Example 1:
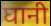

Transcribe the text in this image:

घानी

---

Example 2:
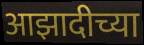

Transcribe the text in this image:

आझादीच्या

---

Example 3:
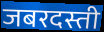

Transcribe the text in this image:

जबरदस्ती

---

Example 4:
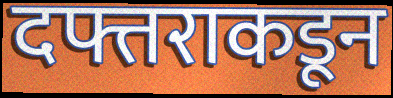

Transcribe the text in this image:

दफ्तराकडून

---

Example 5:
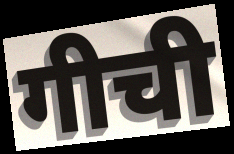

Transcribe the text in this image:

गीची